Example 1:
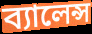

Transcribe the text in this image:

ব্যালেন্স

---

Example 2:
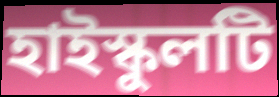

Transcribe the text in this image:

হাইস্কুলটি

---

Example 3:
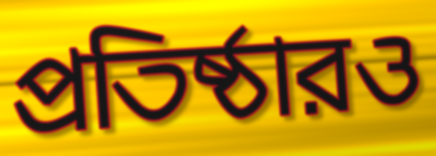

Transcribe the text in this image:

প্রতিষ্ঠারও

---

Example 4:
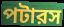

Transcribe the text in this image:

পটারস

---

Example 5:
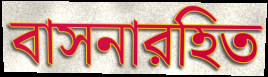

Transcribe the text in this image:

বাসনারহিত